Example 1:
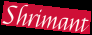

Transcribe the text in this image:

Shrimant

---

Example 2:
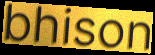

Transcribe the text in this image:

bhison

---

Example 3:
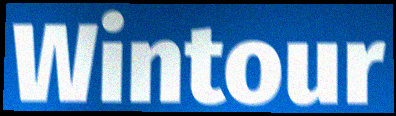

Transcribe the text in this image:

Wintour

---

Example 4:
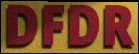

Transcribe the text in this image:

DFDR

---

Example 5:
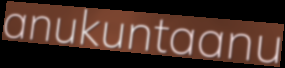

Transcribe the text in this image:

anukuntaanu